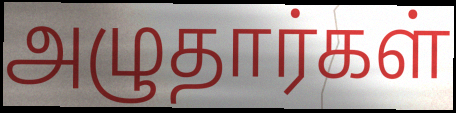
அழுதார்கள்